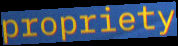
propriety